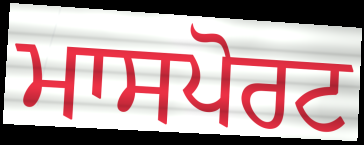
ਮਾਸਪੋਰਟ